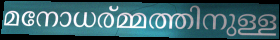
മനോധര്മ്മത്തിനുള്ള